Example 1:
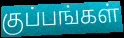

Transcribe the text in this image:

குப்பங்கள்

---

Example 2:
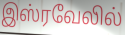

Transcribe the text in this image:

இஸ்ரவேலில்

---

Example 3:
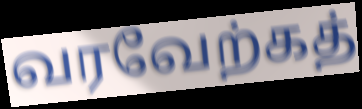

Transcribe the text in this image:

வரவேற்கத்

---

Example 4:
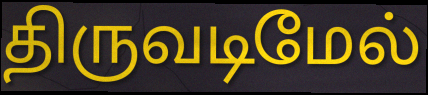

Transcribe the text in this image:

திருவடிமேல்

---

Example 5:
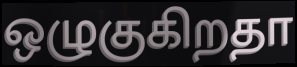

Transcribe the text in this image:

ஒழுகுகிறதா